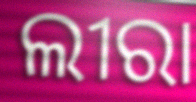
ଲୀରା